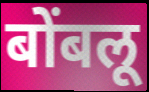
बोंबलू